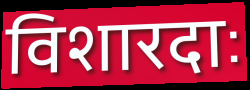
विशारदाः